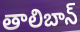
తాలిబాన్